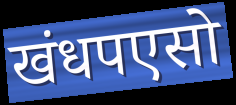
खंधपएसो